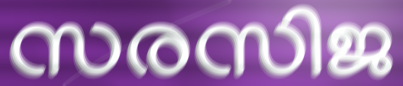
സരസിജ